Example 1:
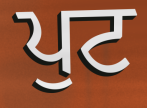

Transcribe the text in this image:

ਪੁਟ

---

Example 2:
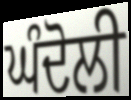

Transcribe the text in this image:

ਘੰਦੋਲੀ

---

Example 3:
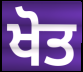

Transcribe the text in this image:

ਖੋਤ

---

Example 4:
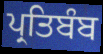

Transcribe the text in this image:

ਪ੍ਰਤਿਬੰਬ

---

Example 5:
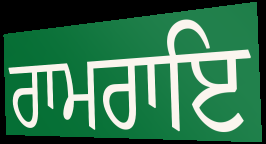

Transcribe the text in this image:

ਰਾਮਰਾਇ